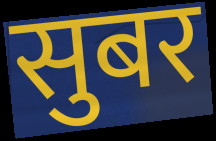
सुबर